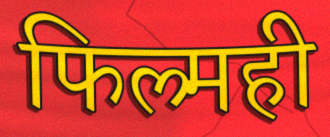
फिल्मही